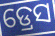
ଡ୍ରେସ